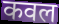
कवल